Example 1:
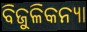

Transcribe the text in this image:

ବିଜୁଳିକନ୍ୟା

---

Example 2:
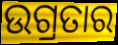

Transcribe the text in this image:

ଉଗ୍ରତାର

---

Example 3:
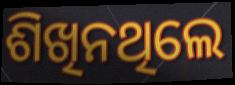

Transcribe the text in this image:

ଶିଖିନଥିଲେ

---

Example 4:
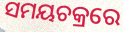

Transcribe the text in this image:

ସମୟଚକ୍ରରେ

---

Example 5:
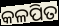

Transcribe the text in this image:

କଳପିତ